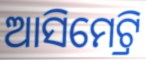
ଆସିମେଟ୍ରି